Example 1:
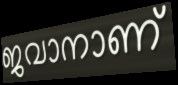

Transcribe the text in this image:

ജവാനാണ്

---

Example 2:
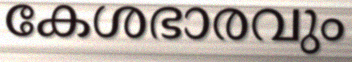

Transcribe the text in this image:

കേശഭാരവും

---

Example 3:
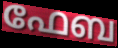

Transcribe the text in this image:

ഫേബ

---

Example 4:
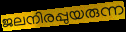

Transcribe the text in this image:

ജലനിരപ്പുയരുന്ന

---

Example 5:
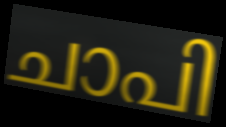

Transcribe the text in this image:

ചാപി